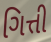
ગિત્તી